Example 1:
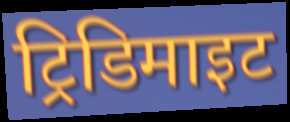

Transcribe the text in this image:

ट्रिडिमाइट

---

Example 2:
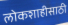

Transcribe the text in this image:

लोकशाहीसाठी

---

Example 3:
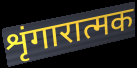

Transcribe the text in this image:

शृंगारात्मक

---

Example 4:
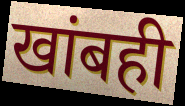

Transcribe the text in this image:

खांबही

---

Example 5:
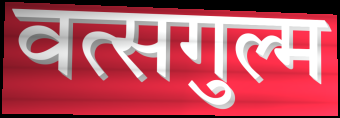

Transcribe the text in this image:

वत्सगुल्म